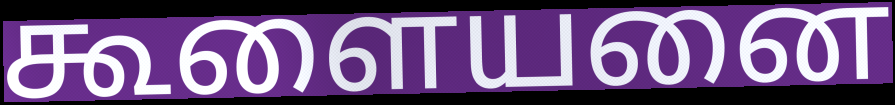
கூளையனை